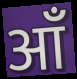
आँ